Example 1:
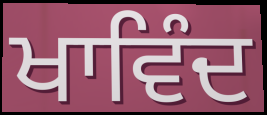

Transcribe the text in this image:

ਖਾਵਿੰਦ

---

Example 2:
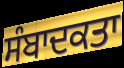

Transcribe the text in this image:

ਸੰਬਾਦਕਤਾ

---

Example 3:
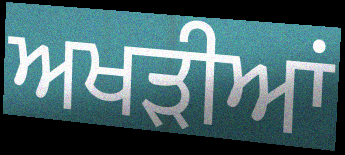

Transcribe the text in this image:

ਅਖੜੀਆਂ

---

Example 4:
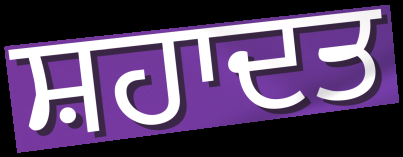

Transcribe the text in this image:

ਸ਼ਹਾਦਤ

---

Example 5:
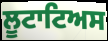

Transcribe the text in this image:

ਲੂਟਾਟਿਅਸ